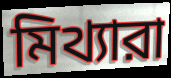
মিথ্যারা